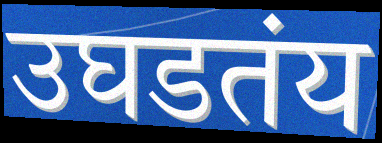
उघडतंय